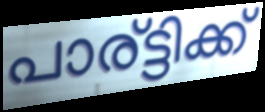
പാര്ട്ടിക്ക്